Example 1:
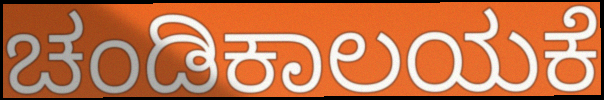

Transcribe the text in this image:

ಚಂಡಿಕಾಲಯಕೆ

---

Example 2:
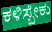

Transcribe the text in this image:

ಕಳಿಸ್ಬೇಕು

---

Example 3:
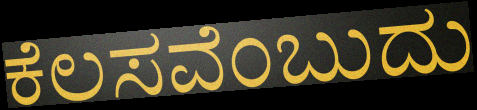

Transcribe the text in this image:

ಕೆಲಸವೆಂಬುದು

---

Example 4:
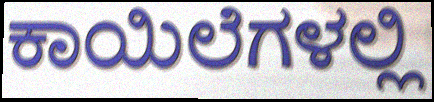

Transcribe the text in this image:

ಕಾಯಿಲೆಗಳಲ್ಲಿ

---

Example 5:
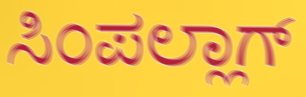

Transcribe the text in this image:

ಸಿಂಪಲ್ಲಾಗ್